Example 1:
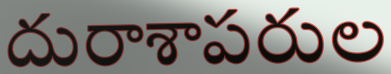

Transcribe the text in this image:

దురాశాపరుల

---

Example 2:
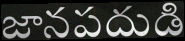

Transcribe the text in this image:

జానపదుడి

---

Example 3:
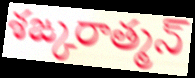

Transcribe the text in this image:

శఙ్కరాత్మన్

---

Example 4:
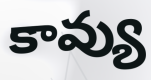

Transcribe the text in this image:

కావ్యు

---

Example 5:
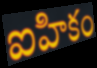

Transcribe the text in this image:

ఐహికం